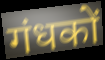
गंधकों